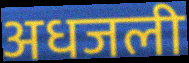
अधजली